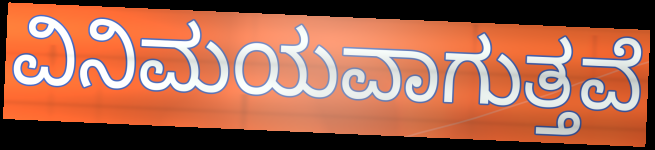
ವಿನಿಮಯವಾಗುತ್ತವೆ